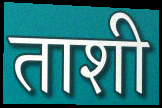
ताशी